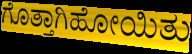
ಗೊತ್ತಾಗಿಹೋಯಿತು